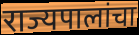
राज्यपालांचा